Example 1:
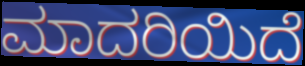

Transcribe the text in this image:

ಮಾದರಿಯಿದೆ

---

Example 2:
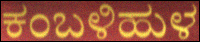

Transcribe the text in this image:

ಕಂಬಳಿಹುಳ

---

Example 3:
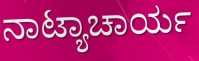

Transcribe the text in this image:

ನಾಟ್ಯಾಚಾರ್ಯ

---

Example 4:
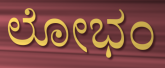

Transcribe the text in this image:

ಲೋಭಂ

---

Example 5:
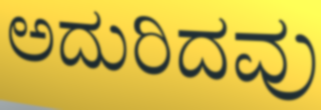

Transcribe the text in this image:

ಅದುರಿದವು